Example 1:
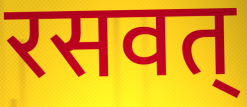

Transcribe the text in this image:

रसवत्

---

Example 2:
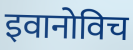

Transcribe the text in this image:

इवानोविच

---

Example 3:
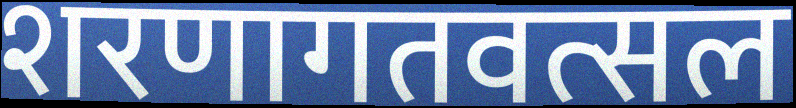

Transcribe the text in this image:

शरणागतवत्सल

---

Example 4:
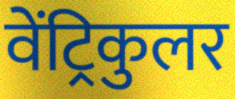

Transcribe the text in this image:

वेंट्रिकुलर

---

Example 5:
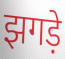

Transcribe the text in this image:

झगड़े